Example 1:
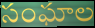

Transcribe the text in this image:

సంఘాల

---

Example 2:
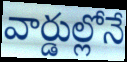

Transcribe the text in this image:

వార్డుల్లోనే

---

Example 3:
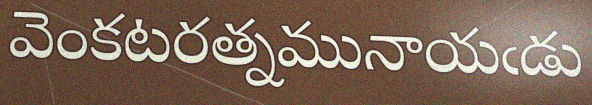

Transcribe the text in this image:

వెంకటరత్నమునాయఁడు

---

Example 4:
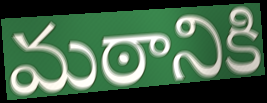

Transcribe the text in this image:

మఠానికి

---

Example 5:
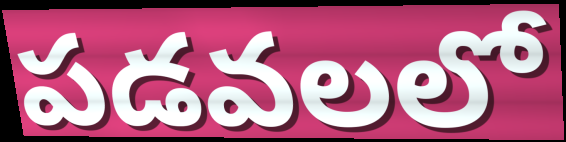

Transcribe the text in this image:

పడవలలో